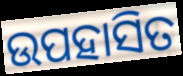
ଉପହାସିତ